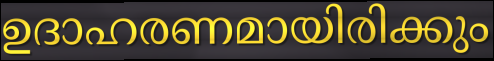
ഉദാഹരണമായിരിക്കും